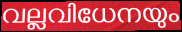
വല്ലവിധേനയും